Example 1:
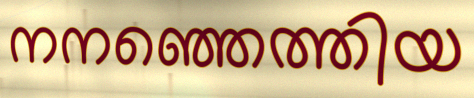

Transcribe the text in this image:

നനഞ്ഞെത്തിയ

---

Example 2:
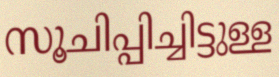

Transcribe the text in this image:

സൂചിപ്പിച്ചിട്ടുള്ള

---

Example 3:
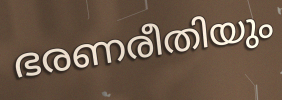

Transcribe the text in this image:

ഭരണരീതിയും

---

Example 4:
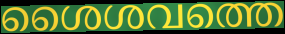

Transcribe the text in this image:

ശൈശവത്തെ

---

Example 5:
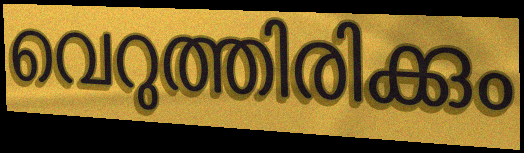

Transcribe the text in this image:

വെറുത്തിരിക്കും